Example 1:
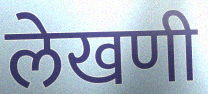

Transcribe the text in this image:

लेखणी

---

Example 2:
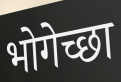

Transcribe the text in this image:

भोगेच्छा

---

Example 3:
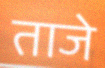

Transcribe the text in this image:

ताजे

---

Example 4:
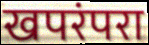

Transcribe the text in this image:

खपरंपरा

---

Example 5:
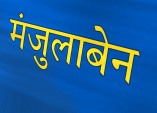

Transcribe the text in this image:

मंजुलाबेन